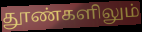
தூண்களிலும்